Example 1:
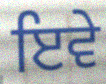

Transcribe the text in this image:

ਇਵੇ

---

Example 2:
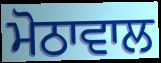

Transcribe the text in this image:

ਮੋਠਾਵਾਲ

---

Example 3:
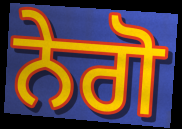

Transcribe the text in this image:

ਨੇਗੋ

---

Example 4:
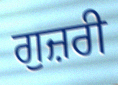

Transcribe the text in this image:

ਗੁਜ਼ਰੀ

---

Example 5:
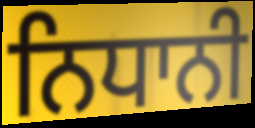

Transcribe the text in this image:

ਨਿਧਾਨੀ